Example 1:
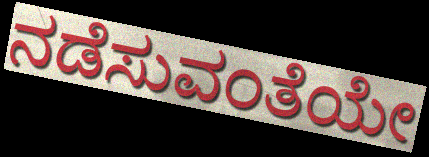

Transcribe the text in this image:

ನಡೆಸುವಂತೆಯೇ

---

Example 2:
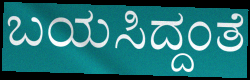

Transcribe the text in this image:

ಬಯಸಿದ್ದಂತೆ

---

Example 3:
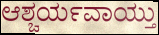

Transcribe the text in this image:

ಆಶ್ಚರ್ಯವಾಯ್ತು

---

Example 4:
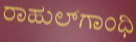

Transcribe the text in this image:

ರಾಹುಲ್‌ಗಾಂಧಿ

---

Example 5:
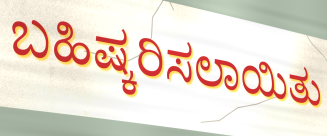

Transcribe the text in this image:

ಬಹಿಷ್ಕರಿಸಲಾಯಿತು